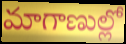
మాగాణుల్లో